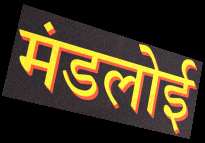
मंडलोई